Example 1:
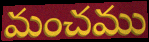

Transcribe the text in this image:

మంచము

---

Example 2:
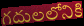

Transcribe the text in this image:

గదులలోనికి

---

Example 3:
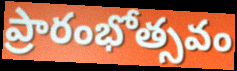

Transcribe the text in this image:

ప్రారంభోత్సవం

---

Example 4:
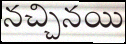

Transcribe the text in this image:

నచ్చినయి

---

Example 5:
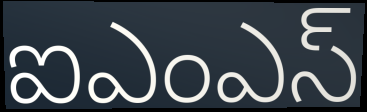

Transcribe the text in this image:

ఐఎంఎస్